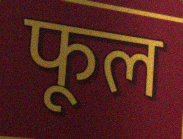
फूल